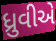
ધ્રુવીએ